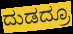
ದುಡದ್ರೂ